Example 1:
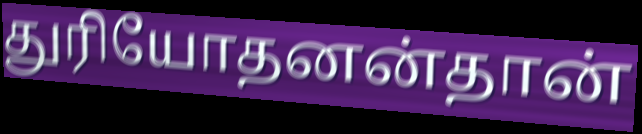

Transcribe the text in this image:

துரியோதனன்தான்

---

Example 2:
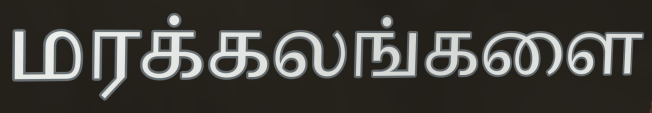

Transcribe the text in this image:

மரக்கலங்களை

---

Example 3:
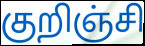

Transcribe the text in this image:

குறிஞ்சி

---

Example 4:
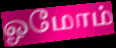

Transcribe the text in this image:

ஓமோம்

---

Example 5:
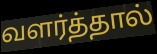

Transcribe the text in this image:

வளர்த்தால்